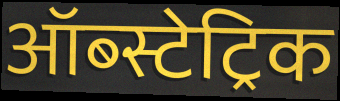
ऑब्स्टेट्रिक